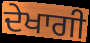
ਦੇਖਾਗੀ